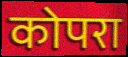
कोपरा